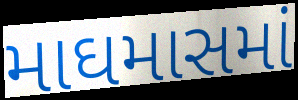
માઘમાસમાં